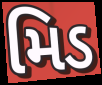
મિડ